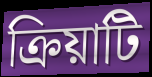
ক্রিয়াটি